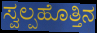
ಸ್ವಲ್ಪಹೊತ್ತಿನ